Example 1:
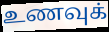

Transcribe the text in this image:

உணவுக்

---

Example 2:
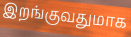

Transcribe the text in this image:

இறங்குவதுமாக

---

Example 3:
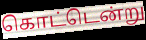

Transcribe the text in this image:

கொட்டென்று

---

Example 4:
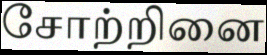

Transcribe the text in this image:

சோற்றினை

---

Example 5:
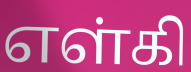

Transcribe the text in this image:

எள்கி